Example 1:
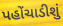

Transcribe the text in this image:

પહોંચાડીશું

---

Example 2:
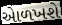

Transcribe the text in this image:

એાળખશે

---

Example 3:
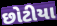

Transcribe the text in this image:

છોટીયા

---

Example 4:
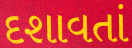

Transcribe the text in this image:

દશાવતાં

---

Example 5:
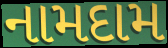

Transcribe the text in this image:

નામદામ